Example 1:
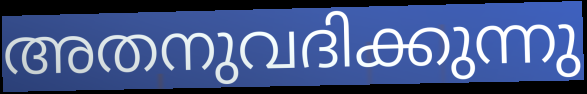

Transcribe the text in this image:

അതനുവദിക്കുന്നു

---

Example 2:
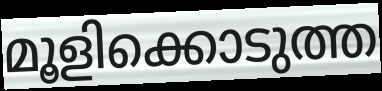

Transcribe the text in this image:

മൂളിക്കൊടുത്ത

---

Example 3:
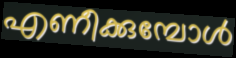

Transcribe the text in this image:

എണീക്കുമ്പോൾ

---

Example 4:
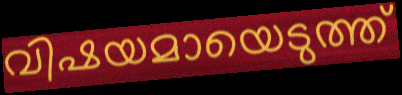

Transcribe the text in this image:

വിഷയമായെടുത്ത്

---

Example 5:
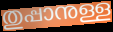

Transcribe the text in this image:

തുപ്പാനുള്ള